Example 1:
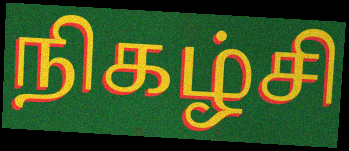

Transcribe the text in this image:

நிகழ்சி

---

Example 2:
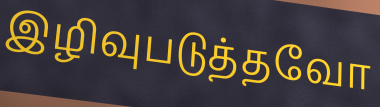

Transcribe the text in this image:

இழிவுபடுத்தவோ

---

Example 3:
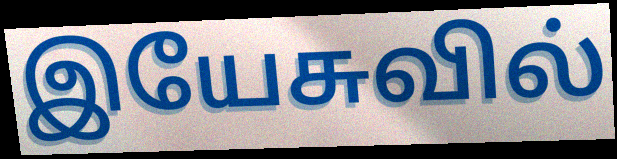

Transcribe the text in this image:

இயேசுவில்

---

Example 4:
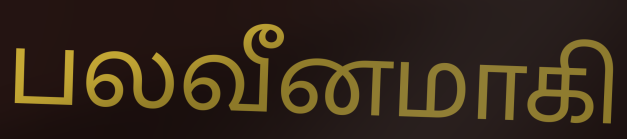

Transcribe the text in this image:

பலவீனமாகி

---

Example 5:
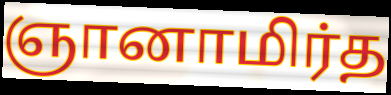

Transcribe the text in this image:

ஞானாமிர்த